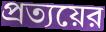
প্রত্যয়ের